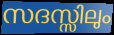
സദസ്സിലും